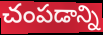
చంపడాన్ని